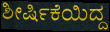
ಶೀರ್ಷಿಕೆಯಿದ್ದ